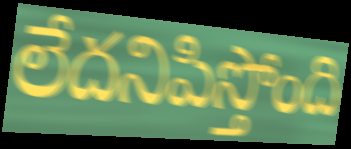
లేదనిపిస్తోంది